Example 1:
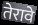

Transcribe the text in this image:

तेरावे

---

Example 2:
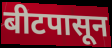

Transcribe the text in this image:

बीटपासून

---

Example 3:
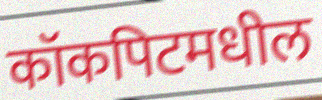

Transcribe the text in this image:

कॉकपिटमधील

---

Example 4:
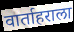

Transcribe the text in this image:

वार्ताहराला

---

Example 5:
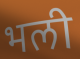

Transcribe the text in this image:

भली